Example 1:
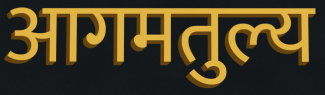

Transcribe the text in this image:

आगमतुल्य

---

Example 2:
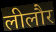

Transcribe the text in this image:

लीलौर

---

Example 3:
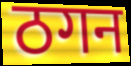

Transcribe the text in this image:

ठगन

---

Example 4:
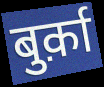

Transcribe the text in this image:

बुर्क़ा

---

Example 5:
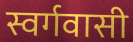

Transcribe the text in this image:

स्वर्गवासी